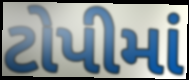
ટોપીમાં